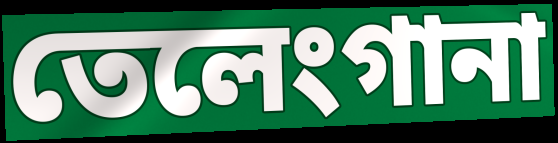
তেলেংগানা